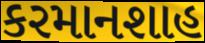
કરમાનશાહ